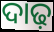
ଦାଢ଼